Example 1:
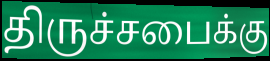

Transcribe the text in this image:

திருச்சபைக்கு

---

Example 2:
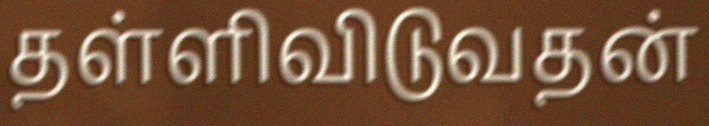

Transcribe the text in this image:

தள்ளிவிடுவதன்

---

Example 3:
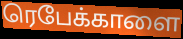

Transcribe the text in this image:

ரெபேக்காளை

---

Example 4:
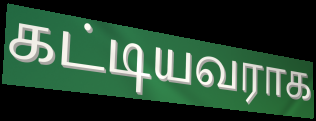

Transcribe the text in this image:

கட்டியவராக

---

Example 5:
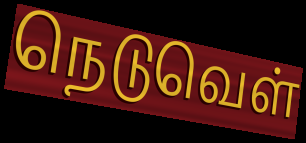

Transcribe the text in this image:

நெடுவெள்